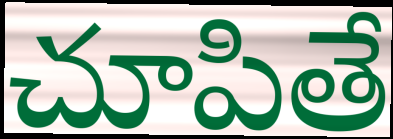
చూపితే